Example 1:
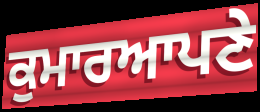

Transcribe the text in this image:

ਕੁਮਾਰਆਪਣੇ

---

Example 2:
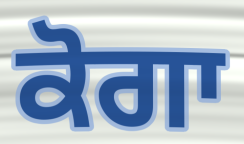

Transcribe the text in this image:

ਕੋਗਾ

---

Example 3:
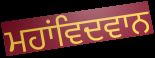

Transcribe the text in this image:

ਮਹਾਂਵਿਦਵਾਨ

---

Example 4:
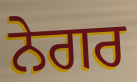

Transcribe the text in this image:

ਨੇਗਰ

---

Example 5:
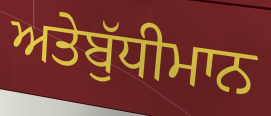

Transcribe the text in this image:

ਅਤੇਬੁੱਧੀਮਾਨ